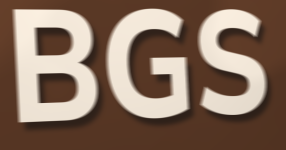
BGS